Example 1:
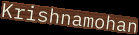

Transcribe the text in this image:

Krishnamohan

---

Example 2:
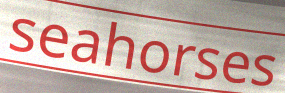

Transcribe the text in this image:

seahorses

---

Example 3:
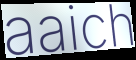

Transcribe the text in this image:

aaich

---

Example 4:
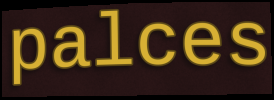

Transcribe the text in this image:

palces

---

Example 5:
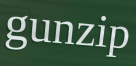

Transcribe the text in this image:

gunzip